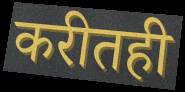
करीतही